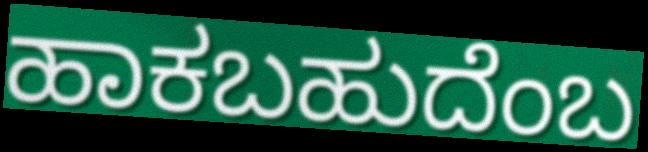
ಹಾಕಬಹುದೆಂಬ